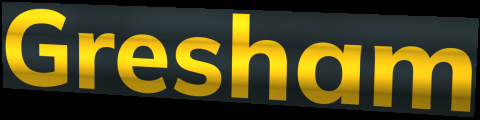
Gresham